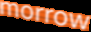
morrow